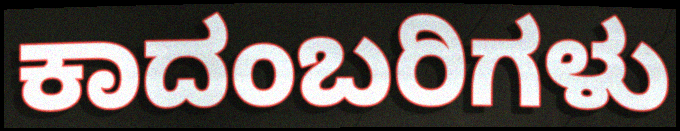
ಕಾದಂಬರಿಗಳು